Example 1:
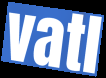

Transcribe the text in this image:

vatl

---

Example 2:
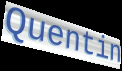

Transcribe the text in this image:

Quentin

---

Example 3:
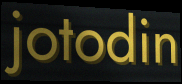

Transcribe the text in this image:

jotodin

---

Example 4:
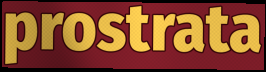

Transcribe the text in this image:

prostrata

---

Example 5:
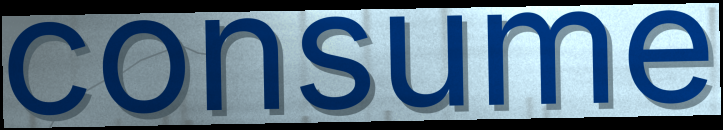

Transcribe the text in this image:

consume